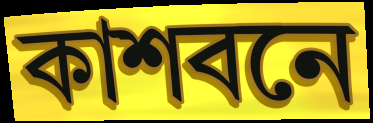
কাশবনে